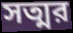
সত্মর